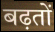
बढ़तों